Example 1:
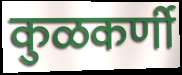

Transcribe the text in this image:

कुळकर्णी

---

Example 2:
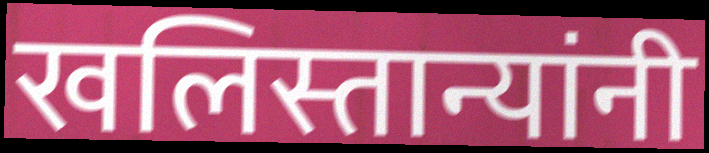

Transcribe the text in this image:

खलिस्तान्यांनी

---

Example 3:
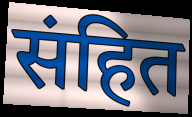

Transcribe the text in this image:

संहित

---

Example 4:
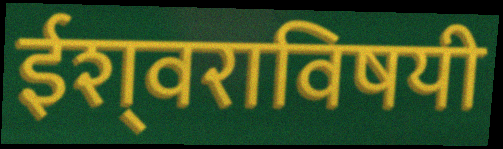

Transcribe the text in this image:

ईश्वराविषयी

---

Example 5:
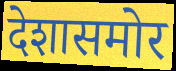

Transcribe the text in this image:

देशासमोर